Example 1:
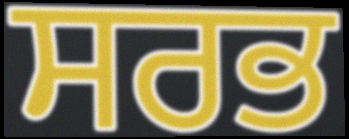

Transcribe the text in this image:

ਸਰਭ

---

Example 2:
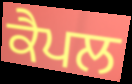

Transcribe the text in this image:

ਕੈਪਲ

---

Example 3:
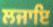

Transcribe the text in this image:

ਲਜਾਇ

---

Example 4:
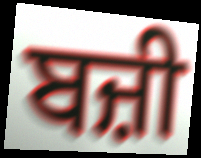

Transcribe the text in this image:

ਬਜ਼ੀ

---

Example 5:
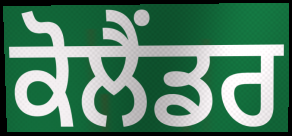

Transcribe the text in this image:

ਕੋਲੈਂਡਰ